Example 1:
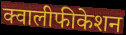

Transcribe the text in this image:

क्वालीफीकेशन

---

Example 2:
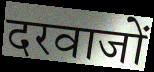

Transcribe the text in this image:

दरवाजों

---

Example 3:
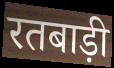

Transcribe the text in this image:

रतबाड़ी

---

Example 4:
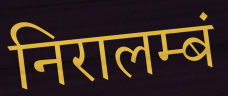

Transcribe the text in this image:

निरालम्बं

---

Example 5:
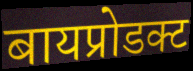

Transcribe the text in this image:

बायप्रोडक्ट